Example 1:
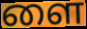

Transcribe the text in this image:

ளை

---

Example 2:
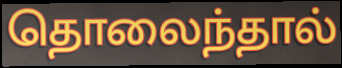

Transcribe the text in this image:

தொலைந்தால்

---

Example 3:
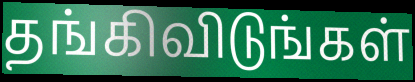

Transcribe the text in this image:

தங்கிவிடுங்கள்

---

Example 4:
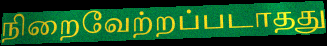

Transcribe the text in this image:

நிறைவேற்றப்படாதது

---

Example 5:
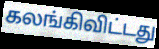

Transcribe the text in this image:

கலங்கிவிட்டது